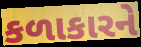
કળાકારને